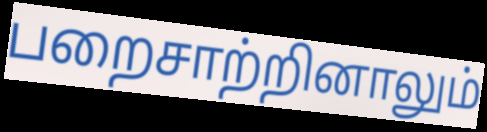
பறைசாற்றினாலும்